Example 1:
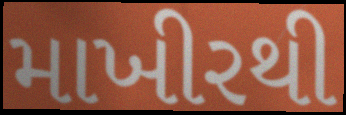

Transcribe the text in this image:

માખીરથી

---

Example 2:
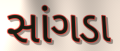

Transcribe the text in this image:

સાંગડા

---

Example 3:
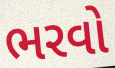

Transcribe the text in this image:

ભરવો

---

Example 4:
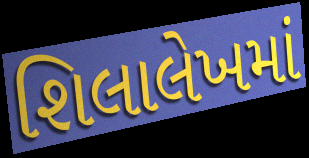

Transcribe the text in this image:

શિલાલેખમાં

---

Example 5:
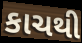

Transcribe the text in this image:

કાચથી